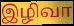
இழிவா